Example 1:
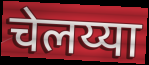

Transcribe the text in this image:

चेलय्या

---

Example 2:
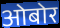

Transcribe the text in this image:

ओबोर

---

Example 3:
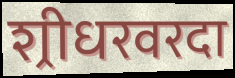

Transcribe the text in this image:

श्रीधरवरदा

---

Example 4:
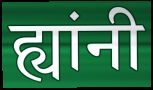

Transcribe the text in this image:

ह्यांनी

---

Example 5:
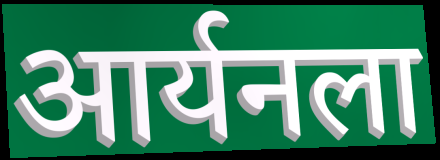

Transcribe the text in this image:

आर्यनला